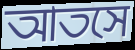
আতসে